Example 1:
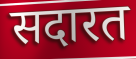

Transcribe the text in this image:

सदारत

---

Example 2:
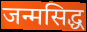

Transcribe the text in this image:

जन्‍मसिद्ध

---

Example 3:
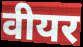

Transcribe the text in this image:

वीयर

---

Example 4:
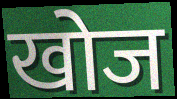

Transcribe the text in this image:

खोज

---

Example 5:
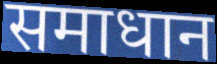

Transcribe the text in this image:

समाधान